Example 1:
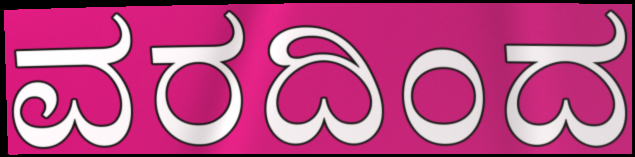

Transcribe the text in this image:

ವರದಿಂದ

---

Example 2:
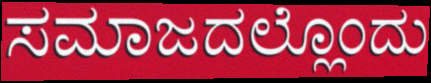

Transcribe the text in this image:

ಸಮಾಜದಲ್ಲೊಂದು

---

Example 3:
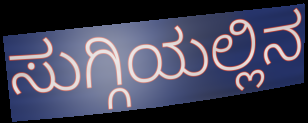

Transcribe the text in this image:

ಸುಗ್ಗಿಯಲ್ಲಿನ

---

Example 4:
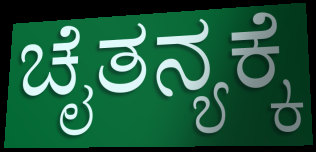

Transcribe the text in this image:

ಚೈತನ್ಯಕ್ಕೆ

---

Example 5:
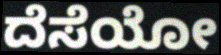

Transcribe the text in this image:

ದೆಸೆಯೋ